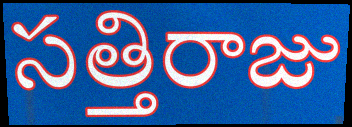
సత్తిరాజు